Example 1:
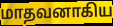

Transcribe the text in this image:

மாதவனாகிய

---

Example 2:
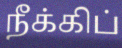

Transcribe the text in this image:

நீக்கிப்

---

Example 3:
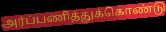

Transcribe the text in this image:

அர்ப்பணித்துக்கொண்டு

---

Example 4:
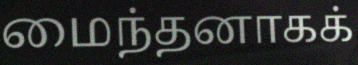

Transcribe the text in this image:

மைந்தனாகக்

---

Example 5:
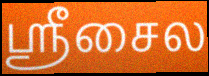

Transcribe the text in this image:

ஸ்ரீசைல